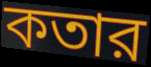
কতার